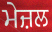
ਮੇਜ਼ਲ